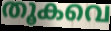
തൂകവെ